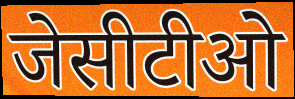
जेसीटीओ